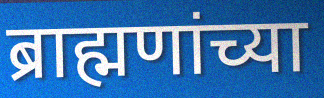
ब्राह्मणांच्या